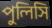
পুলিসি